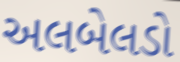
અલબેલડો